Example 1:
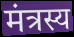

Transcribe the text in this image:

मंत्रस्य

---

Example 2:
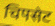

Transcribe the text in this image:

चिपसेट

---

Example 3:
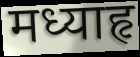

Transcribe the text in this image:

मध्याहृ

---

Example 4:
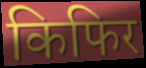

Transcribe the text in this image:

किफिर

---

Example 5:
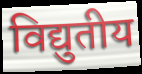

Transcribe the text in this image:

विद्युतीय